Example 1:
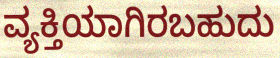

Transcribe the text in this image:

ವ್ಯಕ್ತಿಯಾಗಿರಬಹುದು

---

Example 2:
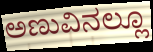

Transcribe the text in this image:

ಅಣುವಿನಲ್ಲೂ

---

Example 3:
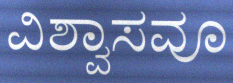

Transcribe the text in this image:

ವಿಶ್ವಾಸವೂ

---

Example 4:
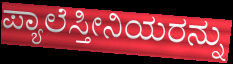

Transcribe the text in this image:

ಪ್ಯಾಲೆಸ್ತೀನಿಯರನ್ನು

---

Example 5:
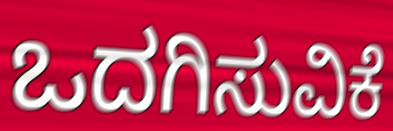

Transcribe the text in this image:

ಒದಗಿಸುವಿಕೆ